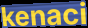
kenaci